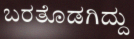
ಬರತೊಡಗಿದ್ದು